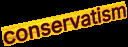
conservatism